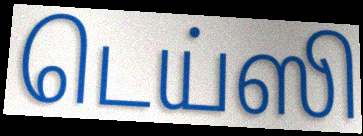
டெய்ஸி